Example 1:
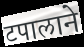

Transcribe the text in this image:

टपालाने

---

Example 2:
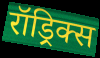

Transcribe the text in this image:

रॉड्रिक्स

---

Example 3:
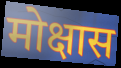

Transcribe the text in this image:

मोक्षास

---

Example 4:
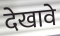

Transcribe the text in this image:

देखावे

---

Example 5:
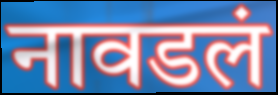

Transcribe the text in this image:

नावडलं